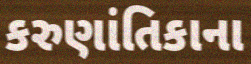
કરુણાંતિકાના